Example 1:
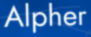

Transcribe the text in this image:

Alpher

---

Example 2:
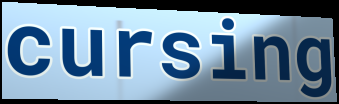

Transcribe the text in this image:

cursing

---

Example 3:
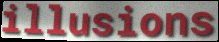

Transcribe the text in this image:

illusions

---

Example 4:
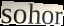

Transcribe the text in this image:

sohor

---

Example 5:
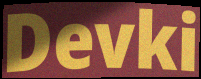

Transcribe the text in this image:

Devki